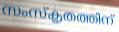
സംസ്‌കൃതത്തിന്